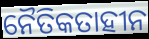
ନୈତିକତାହୀନ